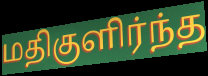
மதிகுளிர்ந்த